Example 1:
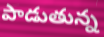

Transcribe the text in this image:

పాడుతున్న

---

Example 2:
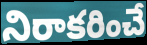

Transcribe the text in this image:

నిరాకరించే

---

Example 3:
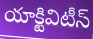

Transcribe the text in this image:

యాక్టివిటీస్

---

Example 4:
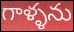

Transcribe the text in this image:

గాళ్ళను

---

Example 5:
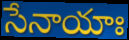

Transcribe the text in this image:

సేనాయాః